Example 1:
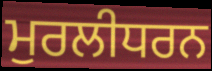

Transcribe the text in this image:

ਮੁਰਲੀਧਰਨ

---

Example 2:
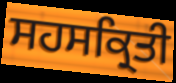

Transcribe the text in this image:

ਸਹਸਕ੍ਰਿਤੀ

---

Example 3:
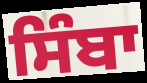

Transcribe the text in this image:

ਸਿੰਬਾ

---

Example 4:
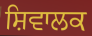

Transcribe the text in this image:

ਸ਼ਿਵਾਲਕ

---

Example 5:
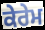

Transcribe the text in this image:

ਕੇਰੇਮ